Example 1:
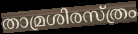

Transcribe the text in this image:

താമ്രശിരസ്ത്രം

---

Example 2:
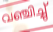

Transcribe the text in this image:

വഞ്ചിച്ചു്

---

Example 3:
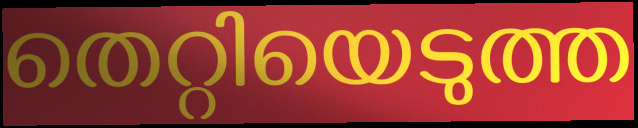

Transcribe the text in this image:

തെറ്റിയെടുത്ത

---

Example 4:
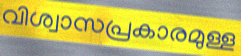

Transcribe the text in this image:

വിശ്വാസപ്രകാരമുള്ള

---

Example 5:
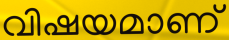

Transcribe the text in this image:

വിഷയമാണ്